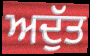
ਅਦੁੱਤ